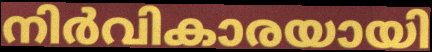
നിർവികാരയായി